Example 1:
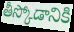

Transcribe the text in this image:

తీస్కోడానికి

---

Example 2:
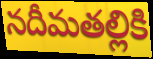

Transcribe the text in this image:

నదీమతల్లికి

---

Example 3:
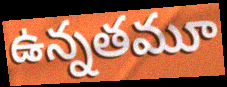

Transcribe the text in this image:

ఉన్నతమూ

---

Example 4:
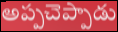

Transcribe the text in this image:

అప్పచెప్పాడు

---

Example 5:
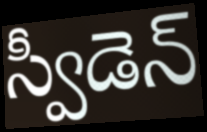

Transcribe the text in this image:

స్వీడెన్